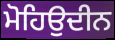
ਮੋਹਿਉਦੀਨ